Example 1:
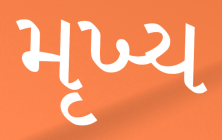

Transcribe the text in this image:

મૃખ્ય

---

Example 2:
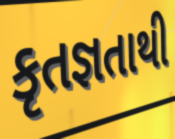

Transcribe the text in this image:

કૃતજ્ઞતાથી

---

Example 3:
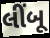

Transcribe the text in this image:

લીંબૂ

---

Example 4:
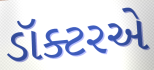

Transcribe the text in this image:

ડૉક્ટરએ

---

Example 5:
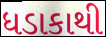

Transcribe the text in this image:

ધડાકાથી